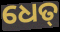
ଧେତ୍